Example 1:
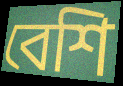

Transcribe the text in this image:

বেশি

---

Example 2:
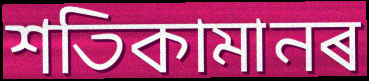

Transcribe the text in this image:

শতিকামানৰ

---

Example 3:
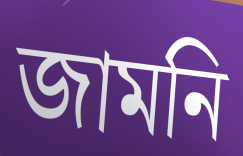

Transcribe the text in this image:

জামনি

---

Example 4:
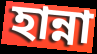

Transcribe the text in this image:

হান্না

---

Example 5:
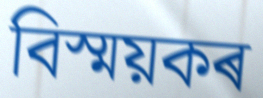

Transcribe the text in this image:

বিস্ময়কৰ